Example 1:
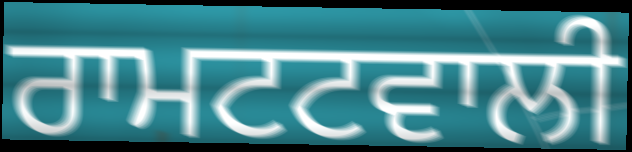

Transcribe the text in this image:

ਰਾਮਟਟਵਾਲੀ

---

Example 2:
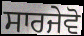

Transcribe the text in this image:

ਸਾਰਜੇਵੋ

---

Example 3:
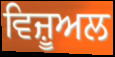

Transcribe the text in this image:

ਵਿਜ਼ੂਅਲ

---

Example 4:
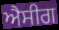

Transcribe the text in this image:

ਐਸੀਗ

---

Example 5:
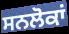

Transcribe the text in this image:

ਸਨਲੋਕਾਂ